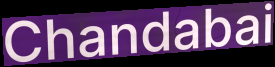
Chandabai